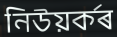
নিউয়ৰ্কৰ